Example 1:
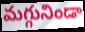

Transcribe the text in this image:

మగ్గునిండా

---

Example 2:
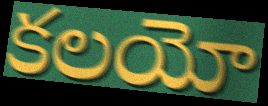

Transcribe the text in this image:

కలయో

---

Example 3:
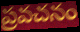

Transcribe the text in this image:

ప్రవచనం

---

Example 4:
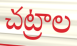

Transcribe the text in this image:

చట్రాల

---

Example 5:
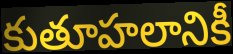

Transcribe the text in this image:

కుతూహలానికీ